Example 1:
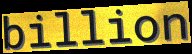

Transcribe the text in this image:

billion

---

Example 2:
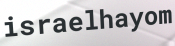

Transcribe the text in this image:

israelhayom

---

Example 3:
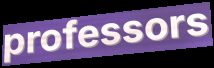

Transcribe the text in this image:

professors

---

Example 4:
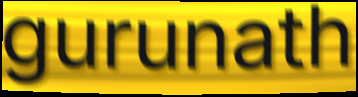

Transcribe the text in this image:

gurunath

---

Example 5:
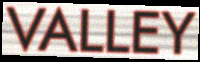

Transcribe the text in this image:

VALLEY